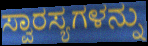
ಸ್ವಾರಸ್ಯಗಳನ್ನು